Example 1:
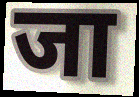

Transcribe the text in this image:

जा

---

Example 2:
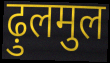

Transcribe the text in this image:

ढ़ुलमुल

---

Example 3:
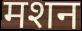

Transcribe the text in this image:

मशन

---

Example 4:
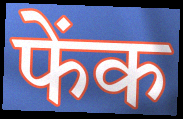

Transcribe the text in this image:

फेंक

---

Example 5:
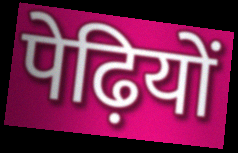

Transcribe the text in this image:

पेढ़ियों